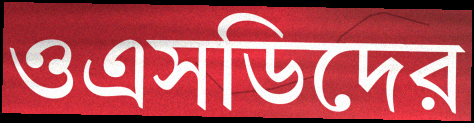
ওএসডিদের